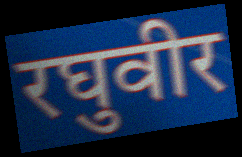
रघुवीर